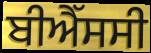
ਬੀਐੱਸਸੀ